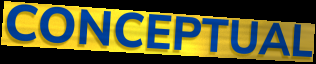
CONCEPTUAL